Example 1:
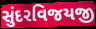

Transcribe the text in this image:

સુંદરવિજયજી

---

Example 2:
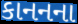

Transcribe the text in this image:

કાનનના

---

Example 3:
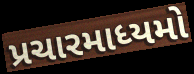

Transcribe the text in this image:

પ્રચારમાધ્યમો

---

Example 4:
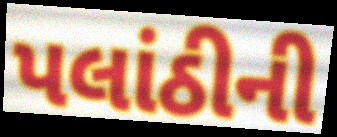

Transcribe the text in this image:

પલાંઠીની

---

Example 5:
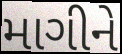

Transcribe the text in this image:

માગીને